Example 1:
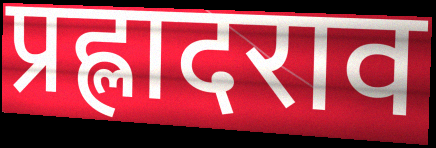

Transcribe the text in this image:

प्रह्लादराव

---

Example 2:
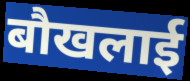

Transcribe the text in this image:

बौखलाई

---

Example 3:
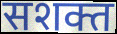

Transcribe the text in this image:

सशक्‍त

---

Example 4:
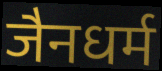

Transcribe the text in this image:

जैनधर्म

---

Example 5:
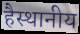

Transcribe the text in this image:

हैस्थानीय